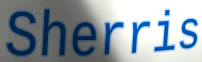
Sherris